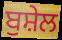
ਬੁਸ਼ੇਲ